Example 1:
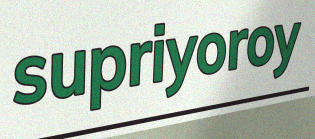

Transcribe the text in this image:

supriyoroy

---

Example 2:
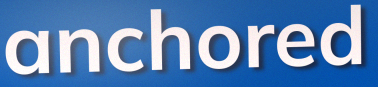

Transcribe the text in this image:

anchored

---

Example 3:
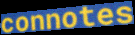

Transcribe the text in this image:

connotes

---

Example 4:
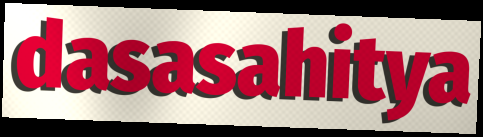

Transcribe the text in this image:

dasasahitya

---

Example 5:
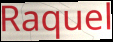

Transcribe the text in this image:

Raquel